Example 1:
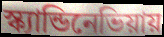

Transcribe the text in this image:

স্ক্যান্ডিনেভিয়ায়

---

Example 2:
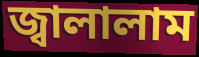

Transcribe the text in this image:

জ্বালালাম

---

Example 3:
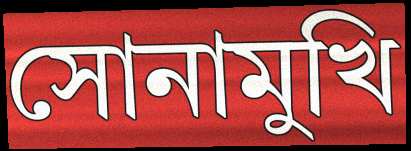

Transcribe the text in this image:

সোনামুখি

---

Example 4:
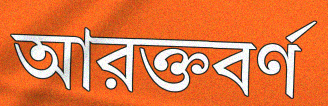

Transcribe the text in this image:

আরক্তবর্ণ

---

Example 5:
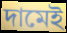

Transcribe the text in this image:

দামেই